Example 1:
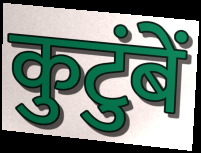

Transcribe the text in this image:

कुटुंबें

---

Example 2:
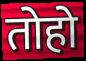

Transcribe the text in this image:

तोहो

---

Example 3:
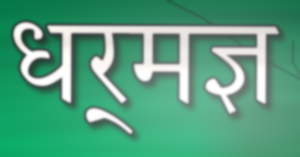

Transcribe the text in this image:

धर्मज्ञ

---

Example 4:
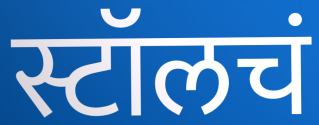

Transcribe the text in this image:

स्टॉलचं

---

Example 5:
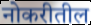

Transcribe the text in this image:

नोकरीतील